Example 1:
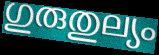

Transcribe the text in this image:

ഗുരുതുല്യം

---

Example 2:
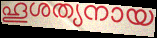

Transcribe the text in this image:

ഹൂശത്യനായ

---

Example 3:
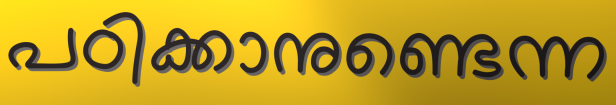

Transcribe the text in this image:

പഠിക്കാനുണ്ടെന്ന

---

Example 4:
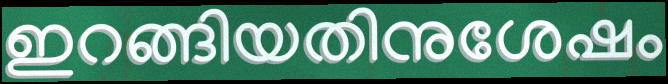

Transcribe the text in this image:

ഇറങ്ങിയതിനുശേഷം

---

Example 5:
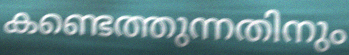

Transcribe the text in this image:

കണ്ടെത്തുന്നതിനും